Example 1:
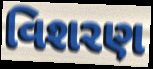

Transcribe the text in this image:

વિશરણ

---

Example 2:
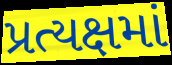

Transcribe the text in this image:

પ્રત્‍યક્ષમાં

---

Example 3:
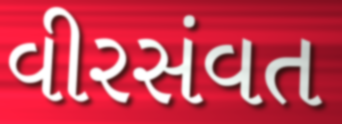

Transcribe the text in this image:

વીરસંવત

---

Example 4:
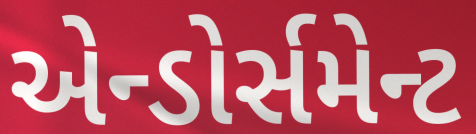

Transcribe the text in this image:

એન્ડોર્સમેન્ટ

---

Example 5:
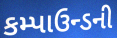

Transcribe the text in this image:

કમ્પાઉન્ડની